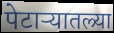
पेटाऱ्यातल्या